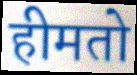
हीमतो